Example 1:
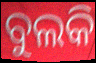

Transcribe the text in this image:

ବୁଲକି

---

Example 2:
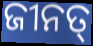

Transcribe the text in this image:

ଜୀନତ୍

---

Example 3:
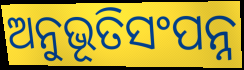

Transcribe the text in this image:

ଅନୁଭୂତିସଂପନ୍ନ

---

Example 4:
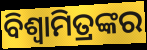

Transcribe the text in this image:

ବିଶ୍ବାମିତ୍ରଙ୍କର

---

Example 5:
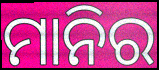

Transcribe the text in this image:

ମାନିର